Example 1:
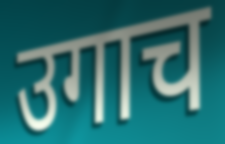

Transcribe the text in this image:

उगाच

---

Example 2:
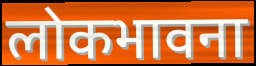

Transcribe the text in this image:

लोकभावना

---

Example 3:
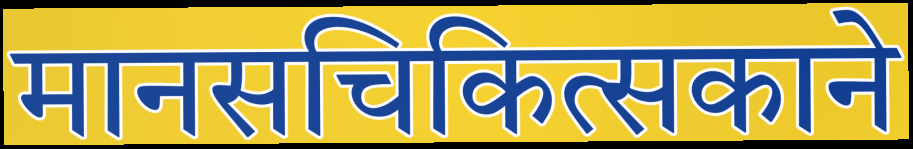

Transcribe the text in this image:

मानसचिकित्सकाने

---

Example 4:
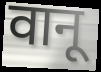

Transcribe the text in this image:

वानू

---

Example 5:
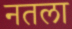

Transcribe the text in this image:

नतला